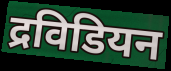
द्रविडियन